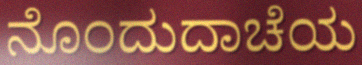
ನೊಂದುದಾಚೆಯ